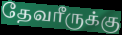
தேவரீருக்கு